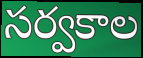
సర్వకాల